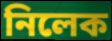
নিলেক